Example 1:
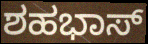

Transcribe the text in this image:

ಶಹಭಾಸ್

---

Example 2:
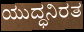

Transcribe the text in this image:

ಯುದ್ಧನಿರತ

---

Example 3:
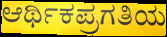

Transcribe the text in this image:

ಆರ್ಥಿಕಪ್ರಗತಿಯ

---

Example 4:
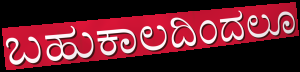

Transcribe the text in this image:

ಬಹುಕಾಲದಿಂದಲೂ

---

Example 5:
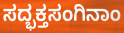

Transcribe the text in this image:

ಸದ್ಭಕ್ತಸಂಗಿನಾಂ